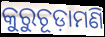
କୁରୁଚୂଡ଼ାମଣି